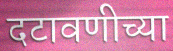
दटावणीच्या